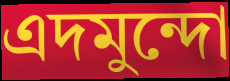
এদমুন্দো